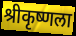
श्रीकृष्णला